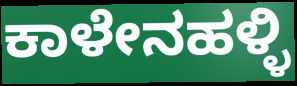
ಕಾಳೇನಹಳ್ಳಿ